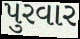
પુરવાર